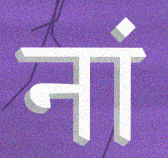
नां